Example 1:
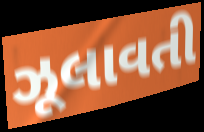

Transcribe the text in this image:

ઝૂલાવતી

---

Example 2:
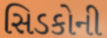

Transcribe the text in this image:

સિડકોની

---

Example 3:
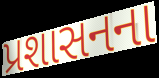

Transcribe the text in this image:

પ્રશાસનના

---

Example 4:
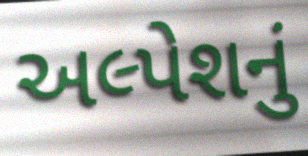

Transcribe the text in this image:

અલ્પેશનું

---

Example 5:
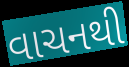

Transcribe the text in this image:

વાચનથી